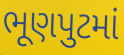
ભૂણપુટમાં